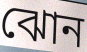
ঝোন